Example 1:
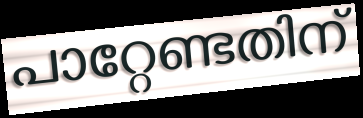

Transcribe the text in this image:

പാറ്റേണ്ടതിന്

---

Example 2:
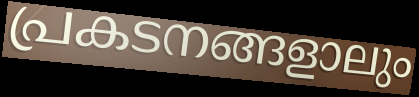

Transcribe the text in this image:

പ്രകടനങ്ങളാലും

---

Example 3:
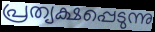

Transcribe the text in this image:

പ്രത്യക്ഷപ്പെടുന്നു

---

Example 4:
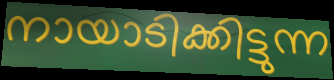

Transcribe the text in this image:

നായാടിക്കിട്ടുന്ന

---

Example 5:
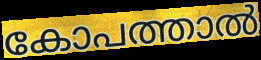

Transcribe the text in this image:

കോപത്താൽ